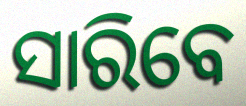
ସାରିବେ